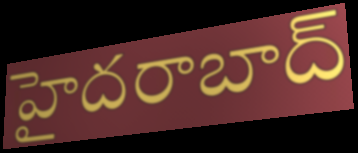
హైదరాబాద్